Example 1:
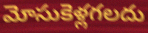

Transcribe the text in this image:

మోసుకెళ్లగలదు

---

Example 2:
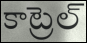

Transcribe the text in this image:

కాట్రెల్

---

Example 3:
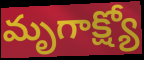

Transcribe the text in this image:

మృగాక్ష్యో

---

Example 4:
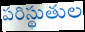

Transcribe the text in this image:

పరిస్థుతుల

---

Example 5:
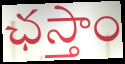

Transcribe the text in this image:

ఛస్తాం